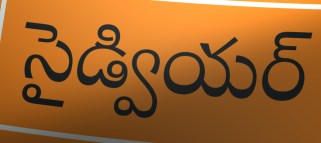
సైడ్వియర్